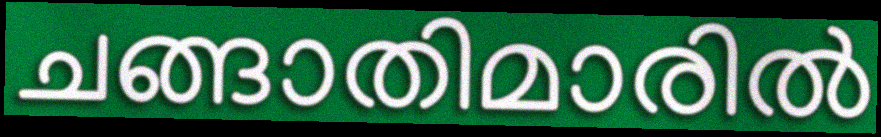
ചങ്ങാതിമാരിൽ